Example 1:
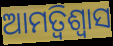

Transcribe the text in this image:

ଆମତ୍ବିଶ୍ୱାସ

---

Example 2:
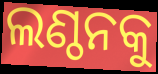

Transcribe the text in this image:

ଲଣ୍ଠନକୁ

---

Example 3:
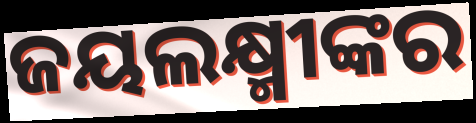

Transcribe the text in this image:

ଜୟଲକ୍ଷ୍ମୀଙ୍କର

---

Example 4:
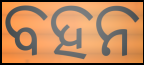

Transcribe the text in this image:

ବହନ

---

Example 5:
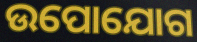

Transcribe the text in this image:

ଉପୋଯୋଗ